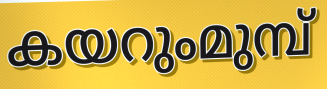
കയറുംമുമ്പ്